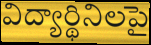
విద్యార్థినిలపై